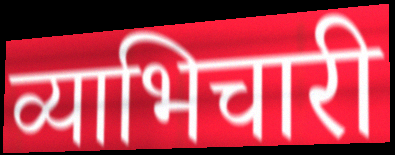
व्याभिचारी